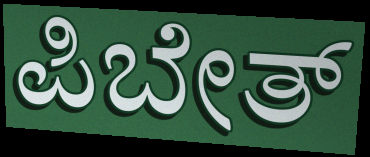
ಪಿಬೇತ್